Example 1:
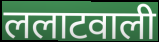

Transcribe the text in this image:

ललाटवाली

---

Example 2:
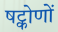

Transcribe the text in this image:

षट्कोणों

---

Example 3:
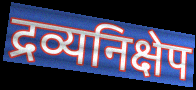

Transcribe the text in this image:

द्रव्यनिक्षेप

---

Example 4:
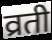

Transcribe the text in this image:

व्रती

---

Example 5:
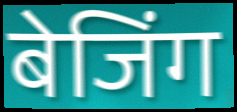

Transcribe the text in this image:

बेजिंग